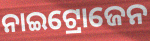
ନାଇଟ୍ରୋଜେନ